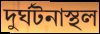
দুর্ঘটনাস্থল